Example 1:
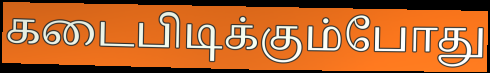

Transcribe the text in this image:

கடைபிடிக்கும்போது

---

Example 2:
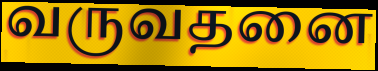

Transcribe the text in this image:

வருவதனை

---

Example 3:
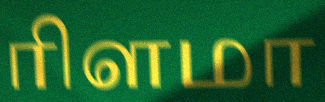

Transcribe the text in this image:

ரிளமா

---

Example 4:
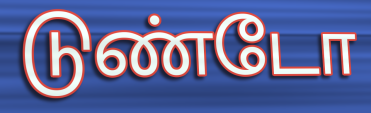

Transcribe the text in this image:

டுண்டோ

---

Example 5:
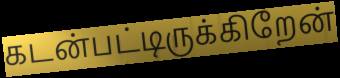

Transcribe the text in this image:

கடன்பட்டிருக்கிறேன்